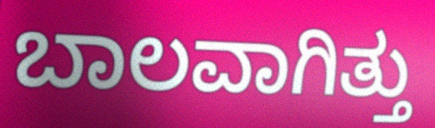
ಬಾಲವಾಗಿತ್ತು